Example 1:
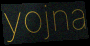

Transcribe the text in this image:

yojna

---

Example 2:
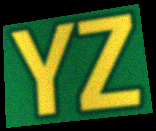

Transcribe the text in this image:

YZ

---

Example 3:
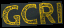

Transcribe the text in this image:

GCRI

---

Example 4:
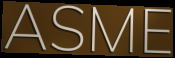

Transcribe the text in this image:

ASME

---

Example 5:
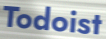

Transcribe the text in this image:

Todoist